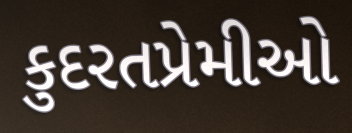
કુદરતપ્રેમીઓ